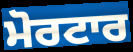
ਮੋਰਟਾਰ